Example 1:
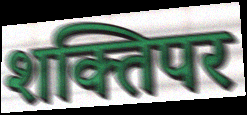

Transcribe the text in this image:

शक्तिपर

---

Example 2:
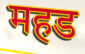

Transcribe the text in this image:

महड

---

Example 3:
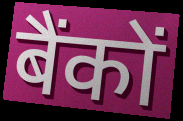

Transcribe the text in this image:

बैंकों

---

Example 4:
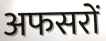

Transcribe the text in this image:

अफसरों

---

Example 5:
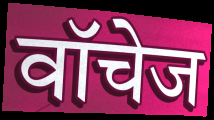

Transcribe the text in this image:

वॉचेज